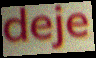
deje